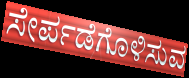
ಸೇರ್ಪಡೆಗೊಳಿಸುವ